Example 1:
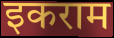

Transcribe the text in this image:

इकराम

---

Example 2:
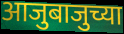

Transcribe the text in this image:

आजुबाजुच्या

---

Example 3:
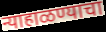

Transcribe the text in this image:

न्याहाळण्याचा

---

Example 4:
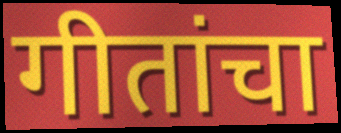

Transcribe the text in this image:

गीतांचा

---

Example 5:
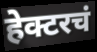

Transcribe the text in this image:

हेक्टरचं